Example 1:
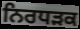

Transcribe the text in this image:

ਨਿਰਧੜਕ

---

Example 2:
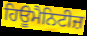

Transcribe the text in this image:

ਹਿਊਮੈਨਿਟੀਜ਼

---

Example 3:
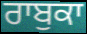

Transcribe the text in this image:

ਰਾਬੁਕਾ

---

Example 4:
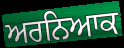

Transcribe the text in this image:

ਅਰਨਿਆਕ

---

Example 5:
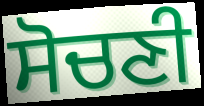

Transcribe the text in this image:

ਸੋਚਣੀ